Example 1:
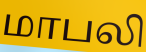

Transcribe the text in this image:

மாபலி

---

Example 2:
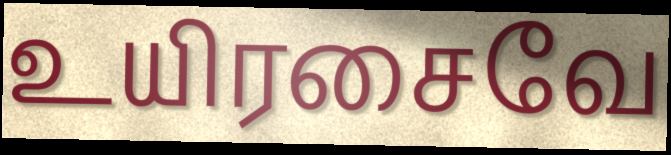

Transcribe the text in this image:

உயிரசைவே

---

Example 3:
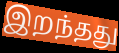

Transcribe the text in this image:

இறந்தது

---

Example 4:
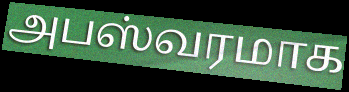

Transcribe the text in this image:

அபஸ்வரமாக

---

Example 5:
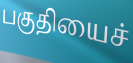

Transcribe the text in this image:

பகுதியைச்